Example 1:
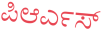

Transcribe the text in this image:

ಪಿಆರ್ಎಸ್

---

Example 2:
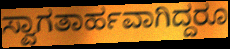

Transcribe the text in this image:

ಸ್ವಾಗತಾರ್ಹವಾಗಿದ್ದರೂ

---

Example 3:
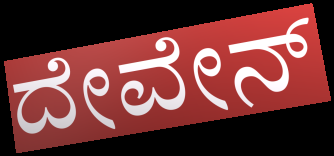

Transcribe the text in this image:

ದೇವೇನ್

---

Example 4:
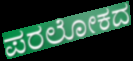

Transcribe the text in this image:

ಪರಲೋಕದ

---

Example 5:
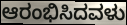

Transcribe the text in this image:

ಆರಂಭಿಸಿದವಳು